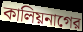
কালিয়নাগের